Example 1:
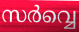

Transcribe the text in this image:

സർവ്വെ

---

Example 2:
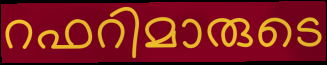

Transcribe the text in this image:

റഫറിമാരുടെ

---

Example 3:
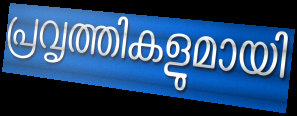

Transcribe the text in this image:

പ്രവൃത്തികളുമായി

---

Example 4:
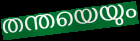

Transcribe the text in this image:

തന്തയെയും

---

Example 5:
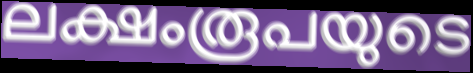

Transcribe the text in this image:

ലക്ഷംരൂപയുടെ